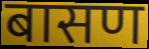
बासण